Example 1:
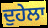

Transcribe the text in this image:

ਦੁਹੇਲਾ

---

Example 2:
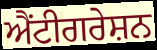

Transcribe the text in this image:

ਐਂਟੀਗਰੇਸ਼ਨ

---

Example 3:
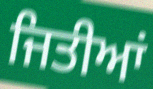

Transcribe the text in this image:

ਜਿਤੀਆਂ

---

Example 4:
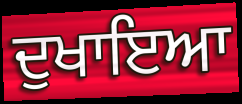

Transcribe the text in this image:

ਦੁਖਾਇਆ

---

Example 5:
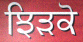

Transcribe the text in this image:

ਝਿੜਕੋ